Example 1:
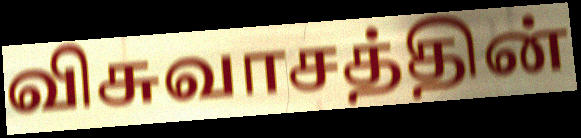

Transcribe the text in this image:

விசுவாசத்தின்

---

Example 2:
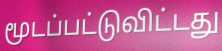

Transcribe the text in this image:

மூடப்பட்டுவிட்டது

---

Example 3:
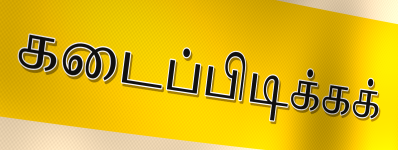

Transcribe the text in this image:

கடைப்பிடிக்கக்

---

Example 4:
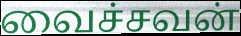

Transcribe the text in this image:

வைச்சவன்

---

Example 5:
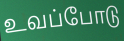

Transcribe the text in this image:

உவப்போடு